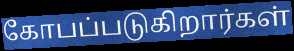
கோபப்படுகிறார்கள்